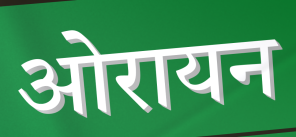
ओरायन